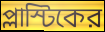
প্লাস্টিকের